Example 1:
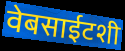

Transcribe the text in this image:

वेबसाईटशी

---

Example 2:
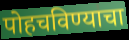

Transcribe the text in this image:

पोहचविण्याचा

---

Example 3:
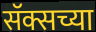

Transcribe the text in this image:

सॅक्सच्या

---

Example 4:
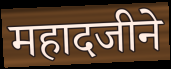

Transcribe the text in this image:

महादजीने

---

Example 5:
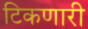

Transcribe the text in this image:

टिकणारी